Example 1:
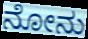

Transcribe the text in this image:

ನೋನು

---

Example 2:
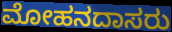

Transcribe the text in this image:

ಮೋಹನದಾಸರು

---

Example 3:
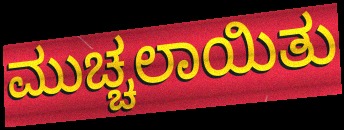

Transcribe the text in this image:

ಮುಚ್ಚಲಾಯಿತು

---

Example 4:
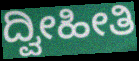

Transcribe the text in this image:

ದ್ವೀಹೀತಿ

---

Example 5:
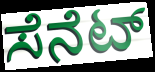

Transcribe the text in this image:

ಸೆನೆಟ್